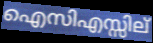
ഐസിഎസ്സില്